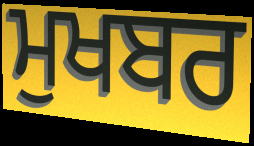
ਮੁਖਬਰ